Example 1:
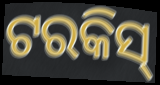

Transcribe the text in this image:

ଟରକିସ୍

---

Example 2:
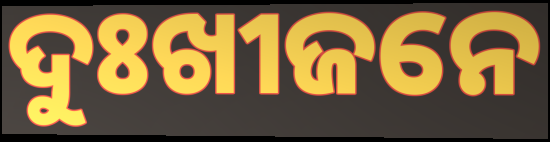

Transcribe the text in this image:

ଦୁଃଖୀଜନେ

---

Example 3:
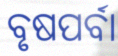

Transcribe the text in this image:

ବୃଷପର୍ବା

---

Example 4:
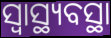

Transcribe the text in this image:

ସ୍ୱାସ୍ଥ୍ୟବସ୍ଥା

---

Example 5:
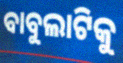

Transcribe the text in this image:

ବାବୁଲାଟିକୁ